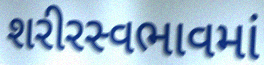
શરીરસ્વભાવમાં